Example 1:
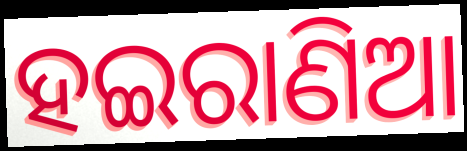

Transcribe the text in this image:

ହଇରାଣିଆ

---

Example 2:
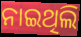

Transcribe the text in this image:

ନାଇଥିଲି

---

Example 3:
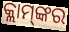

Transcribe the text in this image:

କ୍ଲାମ୍‌ଙ୍କର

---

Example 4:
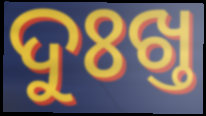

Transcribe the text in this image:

ଦୁଃଖ୍ତ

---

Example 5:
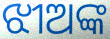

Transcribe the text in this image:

ଝୀଅଙ୍କ